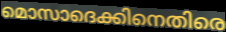
മൊസാദെക്കിനെതിരെ